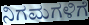
ನಿಗಮಗಳಿಗೆ